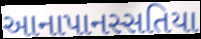
આનાપાનસ્સતિયા